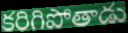
కరిగిపోతాడు